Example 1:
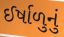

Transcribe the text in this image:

ઈર્ષાળુનું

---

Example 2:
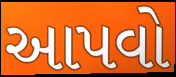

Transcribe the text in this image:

આપવો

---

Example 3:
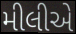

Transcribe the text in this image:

મીલીએ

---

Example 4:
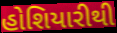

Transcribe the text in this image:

હોશિયારીથી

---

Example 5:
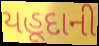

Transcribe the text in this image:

યહૂદાની